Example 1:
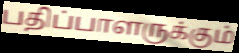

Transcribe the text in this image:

பதிப்பாளருக்கும்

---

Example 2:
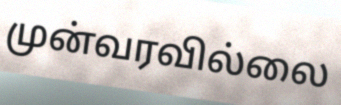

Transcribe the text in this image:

முன்வரவில்லை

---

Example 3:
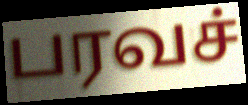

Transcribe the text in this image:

பரவச்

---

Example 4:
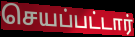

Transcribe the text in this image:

செயப்பட்டார்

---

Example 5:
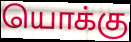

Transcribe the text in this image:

யொக்கு